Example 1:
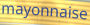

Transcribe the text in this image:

mayonnaise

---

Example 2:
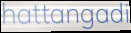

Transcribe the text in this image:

hattangadi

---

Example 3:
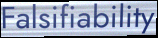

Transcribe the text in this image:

Falsifiability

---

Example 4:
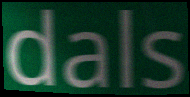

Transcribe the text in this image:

dals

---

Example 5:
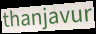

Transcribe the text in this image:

thanjavur